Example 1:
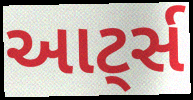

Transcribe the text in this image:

આટ્‌ર્સ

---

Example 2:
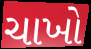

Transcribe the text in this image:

ચાખો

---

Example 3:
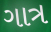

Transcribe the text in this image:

ગાત્ર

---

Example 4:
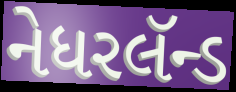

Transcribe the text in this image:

નેધરલૅન્ડ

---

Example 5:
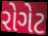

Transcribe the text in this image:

રોગેટ